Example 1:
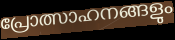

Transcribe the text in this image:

പ്രോത്സാഹനങ്ങളും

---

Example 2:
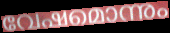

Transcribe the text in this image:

വേഷമൊന്നും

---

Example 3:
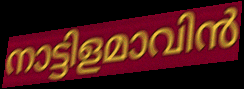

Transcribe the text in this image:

നാട്ടിളമാവിൻ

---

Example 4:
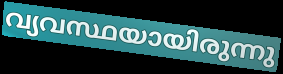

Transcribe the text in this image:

വ്യവസ്ഥയായിരുന്നു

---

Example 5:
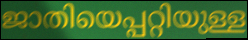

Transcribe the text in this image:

ജാതിയെപ്പറ്റിയുള്ള